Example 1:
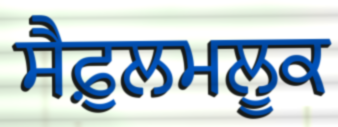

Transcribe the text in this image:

ਸੈਫ਼ੁਲਮਲੂਕ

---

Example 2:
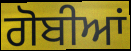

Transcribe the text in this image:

ਗੋਬੀਆਂ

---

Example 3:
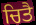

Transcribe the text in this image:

ਚਿਤੈ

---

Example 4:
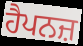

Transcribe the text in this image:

ਹੈਪਨਜ਼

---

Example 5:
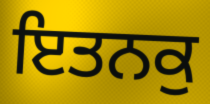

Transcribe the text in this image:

ਇਤਨਕੁ